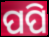
ପପି